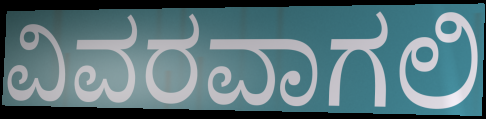
ವಿವರವಾಗಲಿ